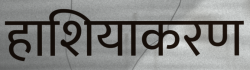
हाशियाकरण